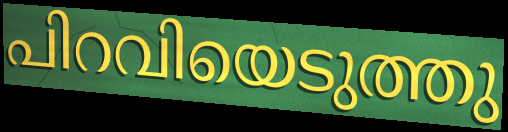
പിറവിയെടുത്തു